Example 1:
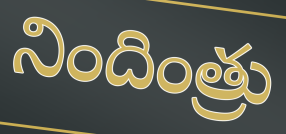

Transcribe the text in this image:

నిందింత్రు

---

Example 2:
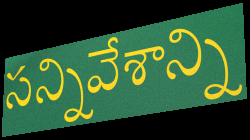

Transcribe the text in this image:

సన్నివేశాన్ని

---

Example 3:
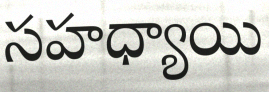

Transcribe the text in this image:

సహధ్యాయి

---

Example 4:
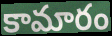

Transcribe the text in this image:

కామారం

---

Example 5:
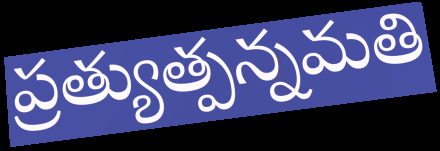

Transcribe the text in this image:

ప్రత్యుత్పన్నమతి